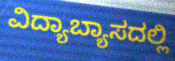
ವಿದ್ಯಾಬ್ಯಾಸದಲ್ಲಿ